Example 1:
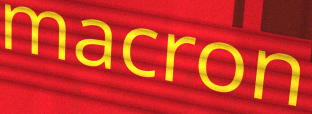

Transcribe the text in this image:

macron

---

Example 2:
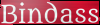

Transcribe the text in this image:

Bindass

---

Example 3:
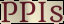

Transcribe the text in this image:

PPIs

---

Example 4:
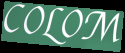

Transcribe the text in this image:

COLOM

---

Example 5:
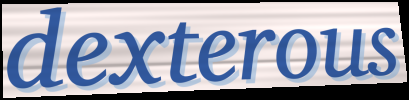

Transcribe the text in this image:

dexterous